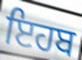
ਇਹਬ